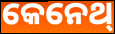
କେନେଥ୍